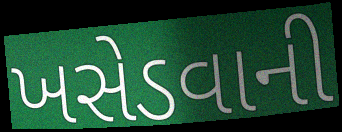
ખસેડવાની